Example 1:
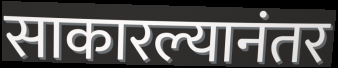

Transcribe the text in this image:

साकारल्यानंतर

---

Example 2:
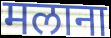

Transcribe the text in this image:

मलाना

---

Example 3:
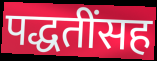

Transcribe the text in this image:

पद्धतींसह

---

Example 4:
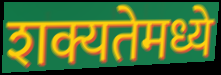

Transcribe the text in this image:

शक्यतेमध्ये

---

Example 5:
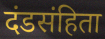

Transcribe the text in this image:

दंडसंहिता